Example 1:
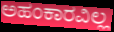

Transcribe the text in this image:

ಅಹಂಕಾರವಿಲ್ಲ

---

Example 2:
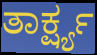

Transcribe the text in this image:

ತಾರ್ಕ್ಷ್ಯ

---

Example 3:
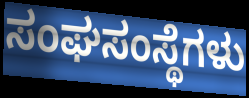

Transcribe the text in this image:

ಸಂಘಸಂಸ್ಥೆಗಳು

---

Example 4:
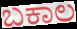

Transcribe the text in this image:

ಬಕಾಲ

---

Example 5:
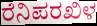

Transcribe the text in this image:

ರೆನಿಪರಖಿಳ